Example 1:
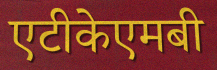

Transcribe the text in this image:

एटीकेएमबी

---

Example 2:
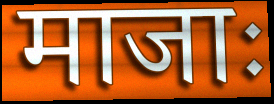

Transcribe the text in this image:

माजाः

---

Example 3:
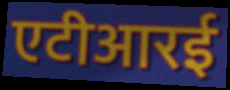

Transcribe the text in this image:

एटीआरई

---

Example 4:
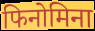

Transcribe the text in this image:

फिनोमिना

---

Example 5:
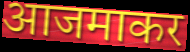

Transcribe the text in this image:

आजमाकर